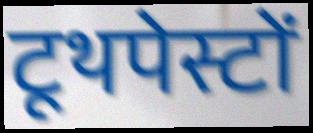
टूथपेस्टों